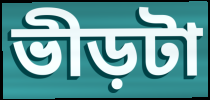
ভীড়টা